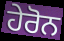
ਹੇਰੋਨ